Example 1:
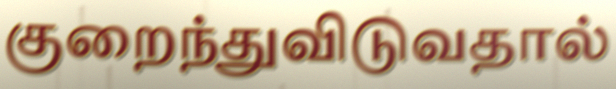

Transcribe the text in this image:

குறைந்துவிடுவதால்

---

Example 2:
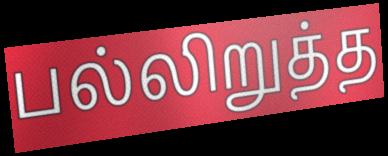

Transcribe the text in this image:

பல்லிறுத்த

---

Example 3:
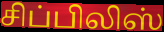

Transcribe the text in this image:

சிப்பிலிஸ்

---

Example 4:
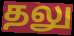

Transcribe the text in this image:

தலு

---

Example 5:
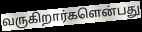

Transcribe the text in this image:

வருகிறார்களென்பது